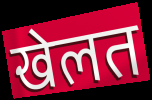
खेलत